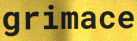
grimace